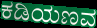
ಕಡಿಯಣವ